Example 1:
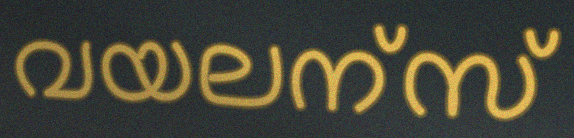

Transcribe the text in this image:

വയലന്സ്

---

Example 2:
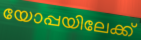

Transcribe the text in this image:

യോപ്പയിലേക്ക്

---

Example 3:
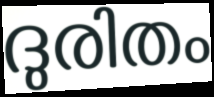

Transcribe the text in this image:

ദുരിതം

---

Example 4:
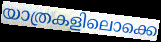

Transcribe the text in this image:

യാത്രകളിലൊക്കെ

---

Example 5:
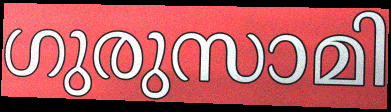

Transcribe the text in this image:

ഗുരുസാമി